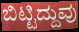
ಬಿಟ್ಟಿದ್ದುವು